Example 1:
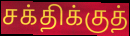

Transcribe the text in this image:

சக்திக்குத்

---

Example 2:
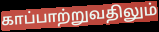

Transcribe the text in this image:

காப்பாற்றுவதிலும்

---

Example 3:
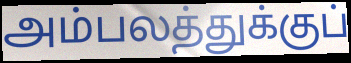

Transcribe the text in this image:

அம்பலத்துக்குப்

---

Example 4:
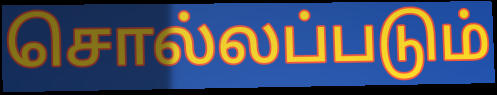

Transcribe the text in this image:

சொல்லப்படும்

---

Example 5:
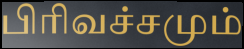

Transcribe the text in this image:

பிரிவச்சமும்